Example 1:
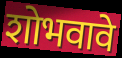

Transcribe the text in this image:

शोभवावे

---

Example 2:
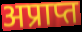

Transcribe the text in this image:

अप्राप्त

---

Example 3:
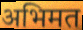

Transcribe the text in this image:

अभिमत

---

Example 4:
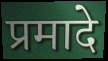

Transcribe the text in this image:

प्रमादे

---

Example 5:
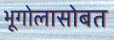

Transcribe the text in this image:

भूगोलासोबत